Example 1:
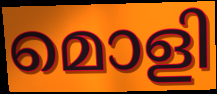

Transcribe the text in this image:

മൊളി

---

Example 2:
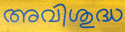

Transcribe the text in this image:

അവിശുദ്ധ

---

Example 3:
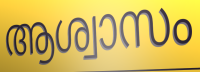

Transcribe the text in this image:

ആശ്വാസം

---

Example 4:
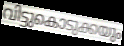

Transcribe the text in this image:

വിട്ടുകൊടുക്കയും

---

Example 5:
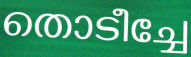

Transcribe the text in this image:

തൊടീച്ചേ